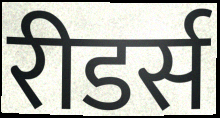
रीडर्स